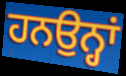
ਹਨਉਨ੍ਹਾਂ